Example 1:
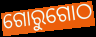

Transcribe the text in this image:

ଗୋରୁଗୋଠ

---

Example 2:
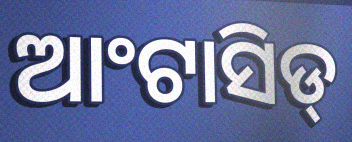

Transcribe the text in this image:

ଆଂଟାସିଡ୍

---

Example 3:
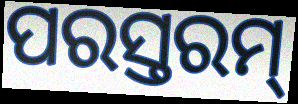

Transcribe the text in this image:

ପରସ୍ତରମ୍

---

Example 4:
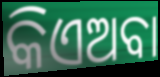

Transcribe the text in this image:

କିଏଅବା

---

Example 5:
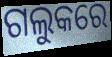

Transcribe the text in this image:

ଗଲୁକରେ